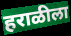
हराळीला